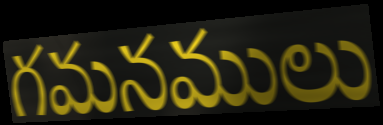
గమనములు